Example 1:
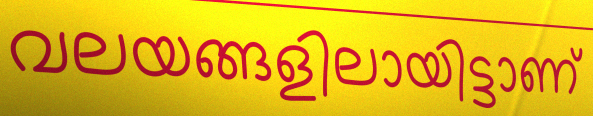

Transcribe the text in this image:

വലയങ്ങളിലായിട്ടാണ്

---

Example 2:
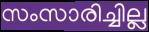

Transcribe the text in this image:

സംസാരിച്ചില്ല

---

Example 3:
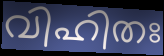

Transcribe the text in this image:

വിഹിതഃ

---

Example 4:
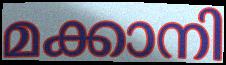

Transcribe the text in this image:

മക്കാനി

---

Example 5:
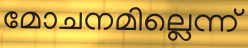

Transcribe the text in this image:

മോചനമില്ലെന്ന്